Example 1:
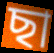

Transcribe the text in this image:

ছা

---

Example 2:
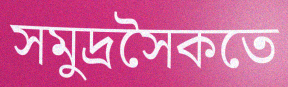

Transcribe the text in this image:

সমুদ্রসৈকতে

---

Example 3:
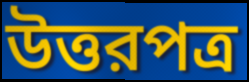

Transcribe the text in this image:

উত্তরপত্র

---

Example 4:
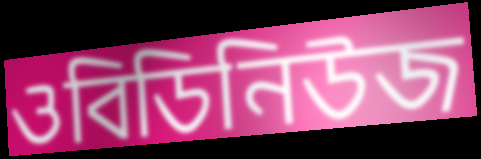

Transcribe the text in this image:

ওবিডিনিউজ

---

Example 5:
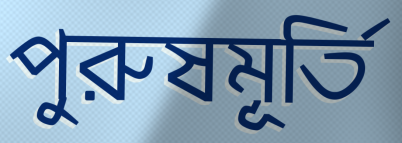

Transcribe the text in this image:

পুরুষমূর্তি